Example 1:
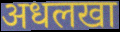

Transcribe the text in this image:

अधलखा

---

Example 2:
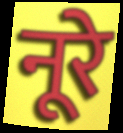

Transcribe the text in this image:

नूरे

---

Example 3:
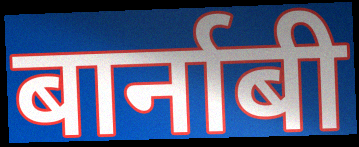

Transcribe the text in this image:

बार्नाबी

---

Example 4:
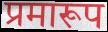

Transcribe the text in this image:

प्रमारूप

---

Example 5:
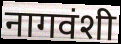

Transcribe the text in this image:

नागवंशी